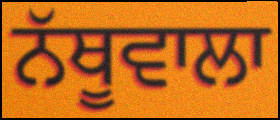
ਨੱਥੂਵਾਲਾ